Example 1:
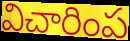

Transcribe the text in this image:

విచారింప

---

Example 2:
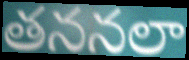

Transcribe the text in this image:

తననలా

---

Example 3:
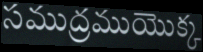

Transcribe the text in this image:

సముద్రముయొక్క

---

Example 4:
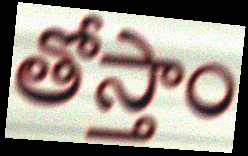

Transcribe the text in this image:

తోస్తాం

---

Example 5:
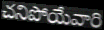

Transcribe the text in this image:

చనిపోయేవారి